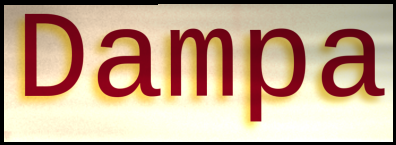
Dampa